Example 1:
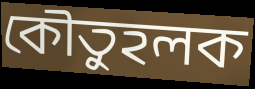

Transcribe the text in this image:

কৌতুহলক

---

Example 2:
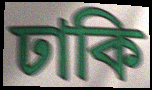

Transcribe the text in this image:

ঢাকি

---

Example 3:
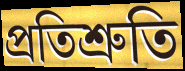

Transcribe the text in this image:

প্ৰতিশ্ৰুতি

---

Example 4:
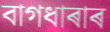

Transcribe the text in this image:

বাগধাৰাৰ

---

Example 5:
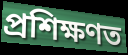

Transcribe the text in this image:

প্ৰশিক্ষণত